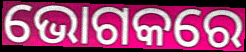
ଭୋଗକରେ